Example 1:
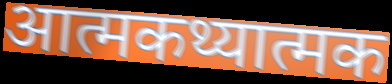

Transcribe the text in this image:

आत्मकथ्यात्मक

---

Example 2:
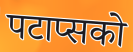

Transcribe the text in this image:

पटाप्सको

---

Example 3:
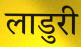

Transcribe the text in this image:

लाडुरी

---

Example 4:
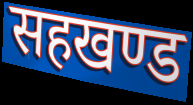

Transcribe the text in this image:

सहखण्ड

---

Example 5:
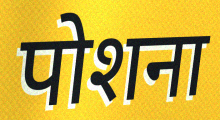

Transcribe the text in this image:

पोशना